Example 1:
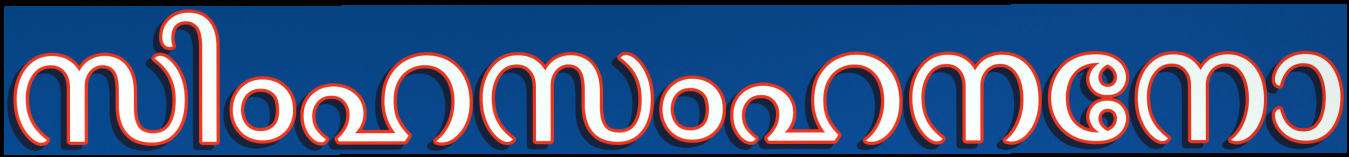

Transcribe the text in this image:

സിംഹസംഹനനോ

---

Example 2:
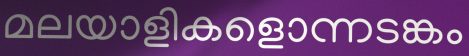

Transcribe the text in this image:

മലയാളികളൊന്നടങ്കം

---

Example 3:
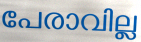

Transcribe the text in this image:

പേരാവില്ല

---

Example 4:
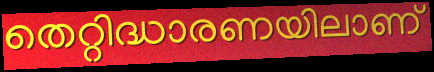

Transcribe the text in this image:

തെറ്റിദ്ധാരണയിലാണ്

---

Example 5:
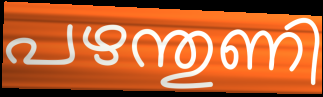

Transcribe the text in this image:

പഴന്തുണി